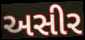
અસીર